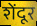
शेंदूर